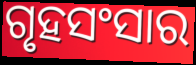
ଗୃହସଂସାର